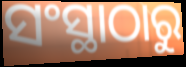
ସଂସ୍ଥାଠାରୁ